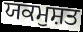
ਯਕਮੁਸ਼ਤ